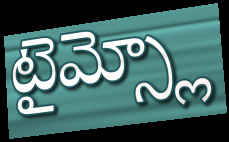
టైమ్స్లో